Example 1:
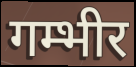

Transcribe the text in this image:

गम्भीर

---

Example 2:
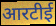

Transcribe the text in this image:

आरटीई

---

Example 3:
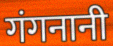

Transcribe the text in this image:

गंगनानी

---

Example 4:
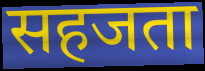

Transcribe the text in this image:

सहजता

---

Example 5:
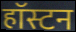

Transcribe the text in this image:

हॉस्टन